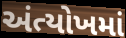
અંત્યોખમાં